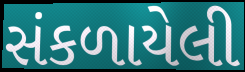
સંકળાયેલી